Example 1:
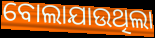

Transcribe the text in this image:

ବୋଲାଯାଉଥିଲା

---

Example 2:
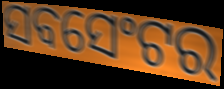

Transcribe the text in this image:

ସବସେଂଟର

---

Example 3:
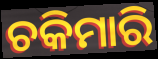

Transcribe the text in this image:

ଚକିମାରି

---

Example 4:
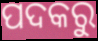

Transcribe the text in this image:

ପଦକରୁ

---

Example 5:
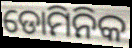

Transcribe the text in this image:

ଡୋମିନିକ